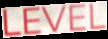
LEVEL